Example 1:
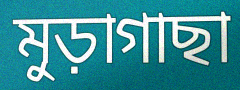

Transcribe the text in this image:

মুড়াগাছা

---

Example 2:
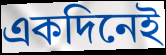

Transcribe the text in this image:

একদিনেই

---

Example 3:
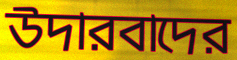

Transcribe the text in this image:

উদারবাদের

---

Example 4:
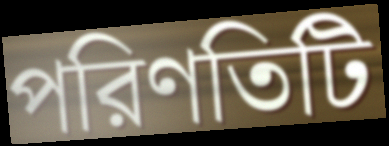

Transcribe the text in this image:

পরিণতিটি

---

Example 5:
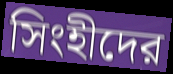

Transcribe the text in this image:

সিংহীদের